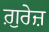
ਗ਼ੁਰੇਜ਼